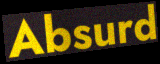
Absurd